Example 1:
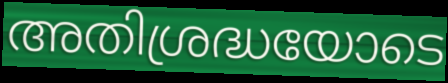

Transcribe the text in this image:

അതിശ്രദ്ധയോടെ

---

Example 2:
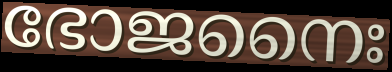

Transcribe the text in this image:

ഭോജനൈഃ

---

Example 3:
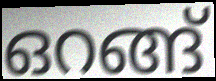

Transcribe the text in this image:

ഒറങ്ങ്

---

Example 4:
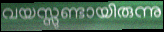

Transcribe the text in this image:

വയസ്സുണ്ടായിരുന്നു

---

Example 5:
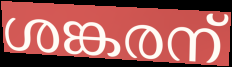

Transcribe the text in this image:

ശങ്കരന്